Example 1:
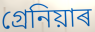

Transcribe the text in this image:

গ্ৰেনিয়াৰ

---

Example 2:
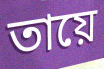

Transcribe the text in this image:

তায়ে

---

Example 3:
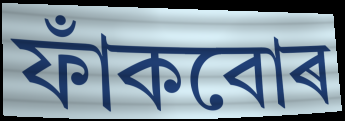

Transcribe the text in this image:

ফাঁকবোৰ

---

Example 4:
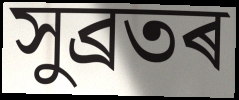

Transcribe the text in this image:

সুব্ৰতৰ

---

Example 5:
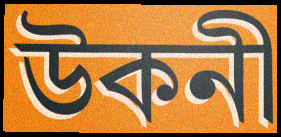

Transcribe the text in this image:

উকনী